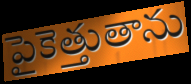
పైకెత్తుతాను